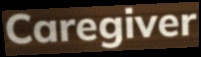
Caregiver